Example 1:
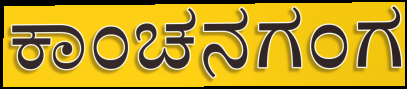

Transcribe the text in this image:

ಕಾಂಚನಗಂಗ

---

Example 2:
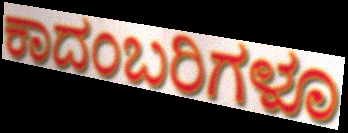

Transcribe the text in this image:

ಕಾದಂಬರಿಗಳೂ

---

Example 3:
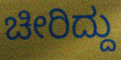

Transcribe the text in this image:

ಚೀರಿದ್ದು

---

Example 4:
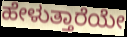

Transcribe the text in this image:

ಹೇಳುತ್ತಾರೆಯೇ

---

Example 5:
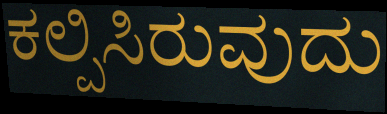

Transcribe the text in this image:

ಕಲ್ಪಿಸಿರುವುದು